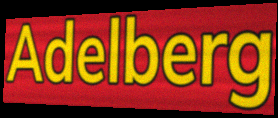
Adelberg